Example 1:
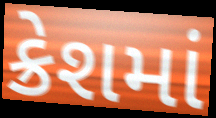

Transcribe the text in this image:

ક્રેશમાં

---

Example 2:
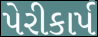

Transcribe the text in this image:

પેરીકાર્પ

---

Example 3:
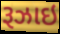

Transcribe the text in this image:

રૂઝાઇ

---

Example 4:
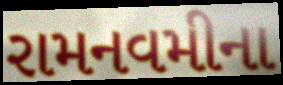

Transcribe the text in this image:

રામનવમીના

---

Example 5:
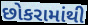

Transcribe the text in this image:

છોકરામાંથી